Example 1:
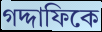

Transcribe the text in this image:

গদ্দাফিকে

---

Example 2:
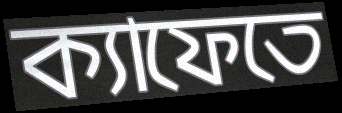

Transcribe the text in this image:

ক্যাফেতে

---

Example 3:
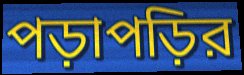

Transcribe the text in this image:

পড়াপড়ির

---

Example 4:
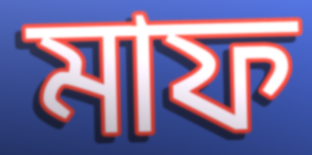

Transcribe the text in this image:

মাফ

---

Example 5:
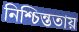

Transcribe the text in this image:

নিশ্চিন্ততায়